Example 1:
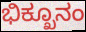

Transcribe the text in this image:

ಭಿಕ್ಖೂನಂ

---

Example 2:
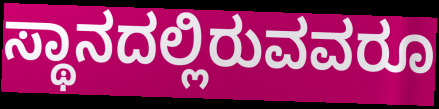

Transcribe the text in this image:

ಸ್ಥಾನದಲ್ಲಿರುವವರೂ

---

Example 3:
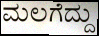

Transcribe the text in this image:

ಮಲಗೆದ್ದು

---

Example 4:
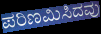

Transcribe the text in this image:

ಪರಿಣಮಿಸಿದವು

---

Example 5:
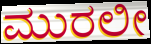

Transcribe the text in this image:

ಮುರಲೀ